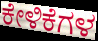
ಕೇಳಿಕೆಗಳ